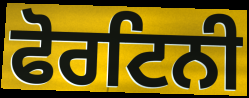
ਫੋਰਟਿਨੀ